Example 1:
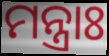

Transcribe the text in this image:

ମନ୍ତ୍ରାଃ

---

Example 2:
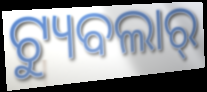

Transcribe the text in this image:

ଟ୍ୟୁବଲାର୍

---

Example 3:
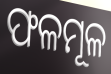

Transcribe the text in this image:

ଫଳମୂଳ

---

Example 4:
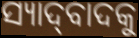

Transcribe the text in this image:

ସ୍ୟାଦ୍‌ବାଦକୁ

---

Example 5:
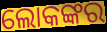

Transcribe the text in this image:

ଲୋକଙ୍କର